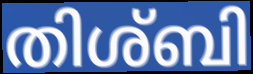
തിശ്ബി